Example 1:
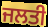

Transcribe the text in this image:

ਜਲਤੀ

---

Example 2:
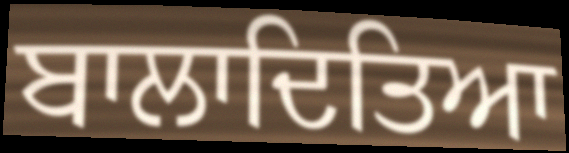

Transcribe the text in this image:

ਬਾਲਾਦਿਤਿਆ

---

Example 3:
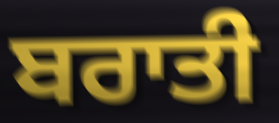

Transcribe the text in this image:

ਬਰਾਤੀ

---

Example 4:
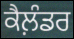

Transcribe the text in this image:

ਕੈਲ਼ੰਡਰ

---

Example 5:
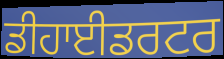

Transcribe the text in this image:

ਡੀਹਾਈਡਰਟਰ